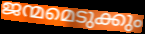
ജന്മമെടുക്കും